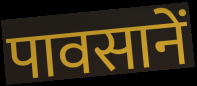
पावसानें